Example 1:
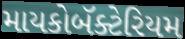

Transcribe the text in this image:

માયકોબૅક્ટેરિયમ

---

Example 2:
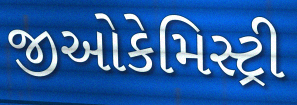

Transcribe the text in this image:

જીઓકેમિસ્ટ્રી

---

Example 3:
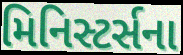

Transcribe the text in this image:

મિનિસ્ટર્સના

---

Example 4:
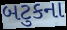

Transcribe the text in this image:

બટુકના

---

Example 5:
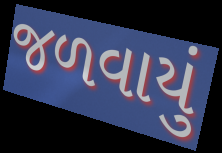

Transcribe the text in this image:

જળવાયું